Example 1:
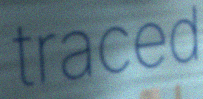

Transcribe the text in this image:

traced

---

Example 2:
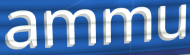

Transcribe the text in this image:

ammu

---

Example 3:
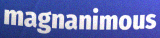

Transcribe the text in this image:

magnanimous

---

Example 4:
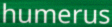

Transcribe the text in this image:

humerus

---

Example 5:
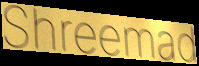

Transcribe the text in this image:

Shreemad